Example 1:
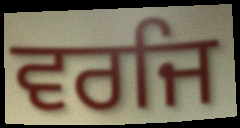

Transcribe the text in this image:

ਵਰਜਿ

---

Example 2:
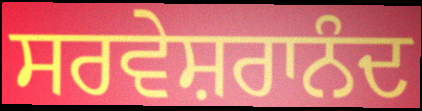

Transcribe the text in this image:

ਸਰਵੇਸ਼ਰਾਨੰਦ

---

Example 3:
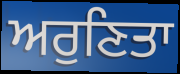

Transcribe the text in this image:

ਅਰੁਣਿਤਾ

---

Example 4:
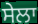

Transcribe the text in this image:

ਸੇਲਾ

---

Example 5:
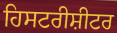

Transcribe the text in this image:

ਹਿਸਟਰੀਸ਼ੀਟਰ